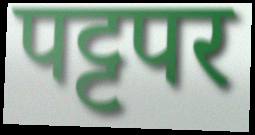
पट्टपर